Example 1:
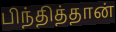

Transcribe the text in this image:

பிந்தித்தான்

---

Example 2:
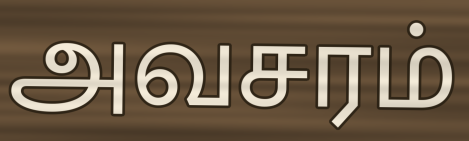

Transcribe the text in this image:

அவசரம்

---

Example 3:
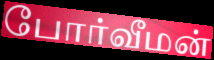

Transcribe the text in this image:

போர்வீமன்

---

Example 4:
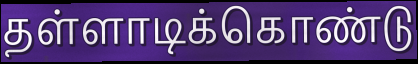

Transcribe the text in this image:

தள்ளாடிக்கொண்டு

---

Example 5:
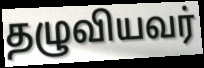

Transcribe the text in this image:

தழுவியவர்